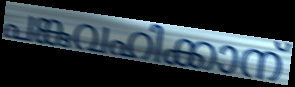
പങ്കുവഹിക്കാന്